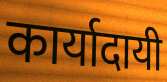
कार्यादायी